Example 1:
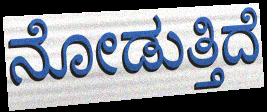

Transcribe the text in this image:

ನೋಡುತ್ತಿದೆ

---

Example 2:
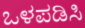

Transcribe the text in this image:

ಒಳಪಡಿಸಿ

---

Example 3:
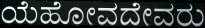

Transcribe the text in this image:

ಯೆಹೋವದೇವರು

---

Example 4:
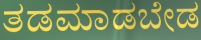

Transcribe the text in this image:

ತಡಮಾಡಬೇಡ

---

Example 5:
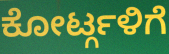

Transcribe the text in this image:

ಕೋರ್ಟ್ಗಳಿಗೆ